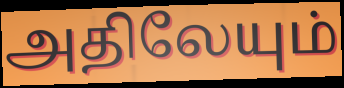
அதிலேயும்